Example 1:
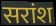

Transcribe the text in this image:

सरांश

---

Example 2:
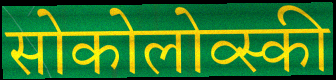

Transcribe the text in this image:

सोकोलोव्स्की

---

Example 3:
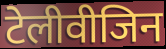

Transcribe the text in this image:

टेलीवीजिन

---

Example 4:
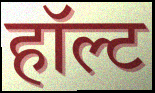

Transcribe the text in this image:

हॉल्ट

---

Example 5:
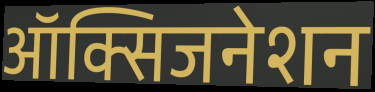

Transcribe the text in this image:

ऑक्सिजनेशन